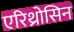
एरिथ्रोसिन